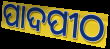
ପାଦପୀଠ